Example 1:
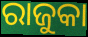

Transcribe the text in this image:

ରାଜୁକା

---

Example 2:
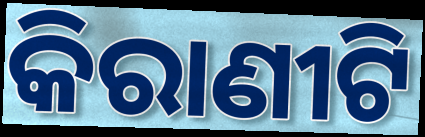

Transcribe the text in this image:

କିରାଣୀଟି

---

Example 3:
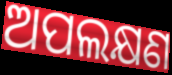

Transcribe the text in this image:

ଅପଲକ୍ଷଣ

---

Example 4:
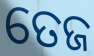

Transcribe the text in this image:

ତେଜ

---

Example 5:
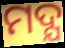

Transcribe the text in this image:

ମଦ୍ଯ